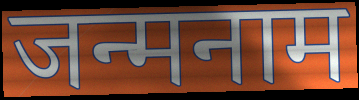
जन्मनाम